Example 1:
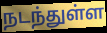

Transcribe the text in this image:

நடந்துள்ள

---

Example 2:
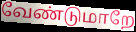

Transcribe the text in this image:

வேண்டுமாறே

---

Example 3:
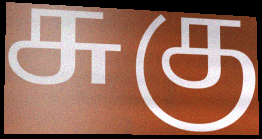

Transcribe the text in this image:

சுகு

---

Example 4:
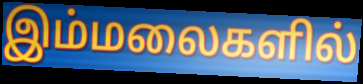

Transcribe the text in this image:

இம்மலைகளில்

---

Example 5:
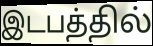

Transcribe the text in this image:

இடபத்தில்